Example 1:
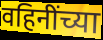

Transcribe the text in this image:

वहिनींच्या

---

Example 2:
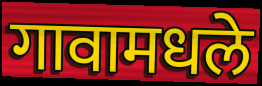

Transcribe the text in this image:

गावामधले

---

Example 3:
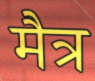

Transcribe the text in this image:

मैत्र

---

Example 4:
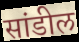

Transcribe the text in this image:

सांडील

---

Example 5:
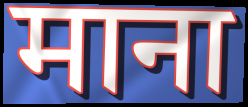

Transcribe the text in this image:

माना